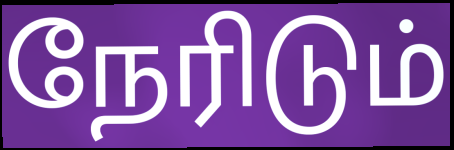
நேரிடும்